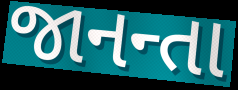
જાનન્તા